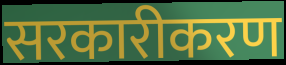
सरकारीकरण